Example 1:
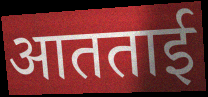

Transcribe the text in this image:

आतताई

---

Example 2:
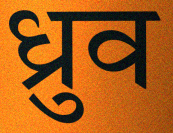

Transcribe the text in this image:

ध्रुव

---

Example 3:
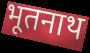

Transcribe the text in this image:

भूतनाथ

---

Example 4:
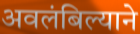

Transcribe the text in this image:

अवलंबिल्याने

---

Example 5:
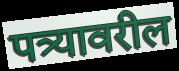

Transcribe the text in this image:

पत्र्यावरील